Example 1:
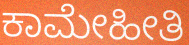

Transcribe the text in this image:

ಕಾಮೇಹೀತಿ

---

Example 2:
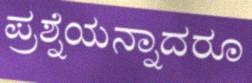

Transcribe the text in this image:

ಪ್ರಶ್ನೆಯನ್ನಾದರೂ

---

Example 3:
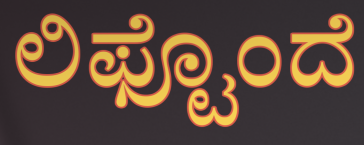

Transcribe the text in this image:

ಲಿಫ್ಟೊಂದೆ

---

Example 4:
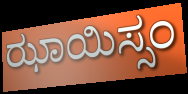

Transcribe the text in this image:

ಝಾಯಿಸ್ಸಂ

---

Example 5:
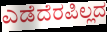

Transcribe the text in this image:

ಎಡೆದೆರಪಿಲ್ಲದ